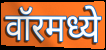
वॉरमध्ये